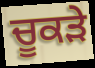
ਚੂਕੜੇ